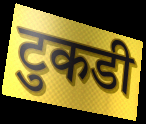
टुकडी